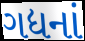
ગદ્યનાં